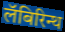
लॅबिरिन्थ